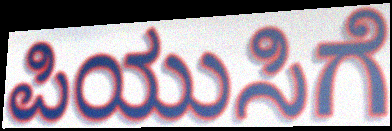
ಪಿಯುಸಿಗೆ